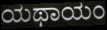
ಯಥಾಯಂ